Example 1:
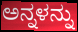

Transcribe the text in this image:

ಅನ್ನಳನ್ನು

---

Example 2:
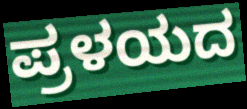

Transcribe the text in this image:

ಪ್ರಳಯದ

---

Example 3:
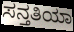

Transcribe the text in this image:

ಸನ್ತತಿಯಾ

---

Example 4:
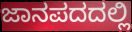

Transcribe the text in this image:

ಜಾನಪದದಲ್ಲಿ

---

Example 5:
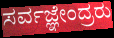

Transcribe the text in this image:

ಸರ್ವಜ್ಞೇಂದ್ರರು